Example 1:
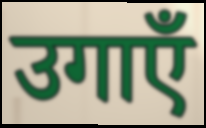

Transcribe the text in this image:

उगाएँ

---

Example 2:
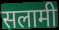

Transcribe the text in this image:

सलामी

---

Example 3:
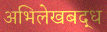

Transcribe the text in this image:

अभिलेखबद्ध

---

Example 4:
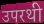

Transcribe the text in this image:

उपरथी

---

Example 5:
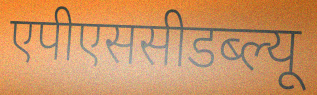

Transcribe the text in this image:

एपीएससीडब्ल्यू